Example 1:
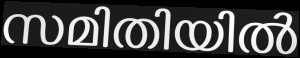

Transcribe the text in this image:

സമിതിയിൽ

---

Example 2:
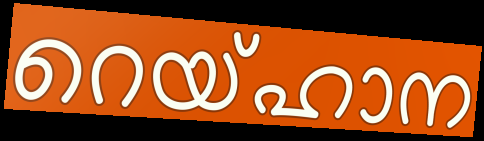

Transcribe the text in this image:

റെയ്ഹാന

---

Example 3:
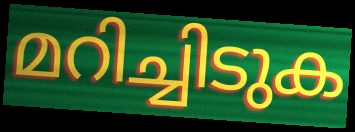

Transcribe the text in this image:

മറിച്ചിടുക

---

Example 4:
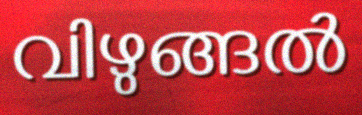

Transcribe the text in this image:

വിഴുങ്ങൽ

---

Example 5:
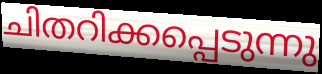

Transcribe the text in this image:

ചിതറിക്കപ്പെടുന്നു